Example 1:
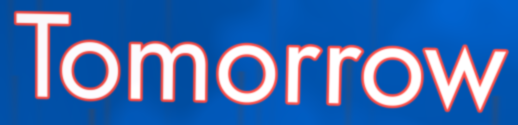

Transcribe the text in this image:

Tomorrow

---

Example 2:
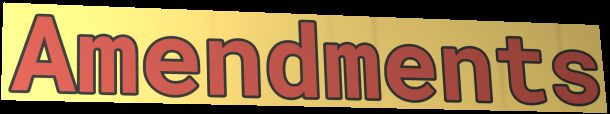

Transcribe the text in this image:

Amendments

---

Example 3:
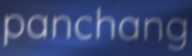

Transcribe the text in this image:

panchang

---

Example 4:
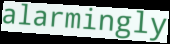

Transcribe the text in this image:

alarmingly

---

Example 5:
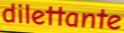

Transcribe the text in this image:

dilettante